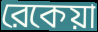
রেকেয়া